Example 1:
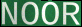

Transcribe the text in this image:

NOOR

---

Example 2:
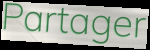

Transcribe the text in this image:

Partager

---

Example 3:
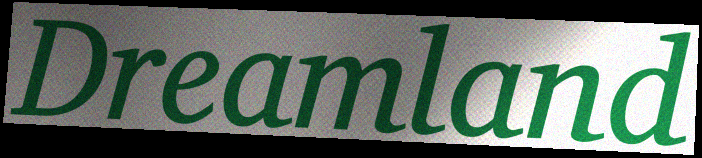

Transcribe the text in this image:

Dreamland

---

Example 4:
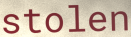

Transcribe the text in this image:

stolen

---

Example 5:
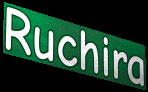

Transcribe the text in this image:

Ruchira